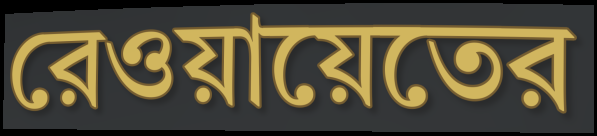
রেওয়ায়েতের